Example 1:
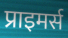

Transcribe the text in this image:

प्राइमर्स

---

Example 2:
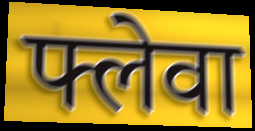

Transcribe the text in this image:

फ्लेवा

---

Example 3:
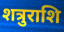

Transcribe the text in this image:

शत्रुराशि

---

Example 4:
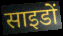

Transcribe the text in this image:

साइडों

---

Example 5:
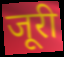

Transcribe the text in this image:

जूरी